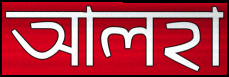
আলহা